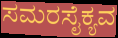
ಸಮರಸೈಕ್ಯವ